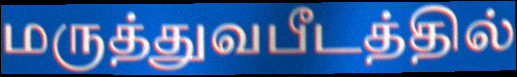
மருத்துவபீடத்தில்